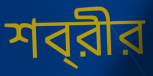
শব্‌রীর